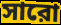
সারো